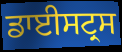
ਡਾਈਸਟ੍ਰਸ